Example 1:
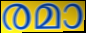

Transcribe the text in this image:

രമാ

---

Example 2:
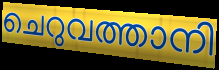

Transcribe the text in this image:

ചെറുവത്താനി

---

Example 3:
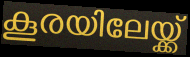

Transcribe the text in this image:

കൂരയിലേയ്ക്ക്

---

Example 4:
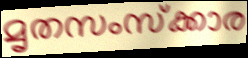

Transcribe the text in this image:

മൃതസംസ്ക്കാര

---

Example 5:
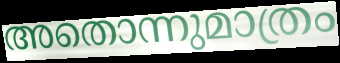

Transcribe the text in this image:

അതൊന്നുമാത്രം